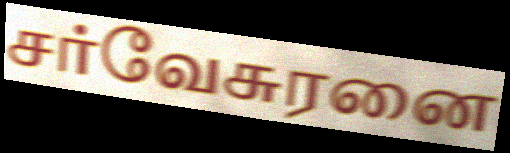
சர்வேசுரனை